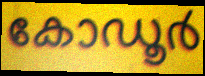
കോഡൂർ